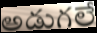
అడుగలే